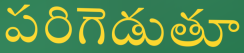
పరిగెడుతూ